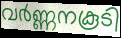
വർണ്ണനകൂടി